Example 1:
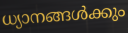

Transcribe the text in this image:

ധ്യാനങ്ങൾക്കും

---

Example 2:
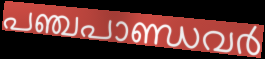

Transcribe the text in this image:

പഞ്ചപാണ്ഡവർ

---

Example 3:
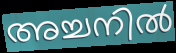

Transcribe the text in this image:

അച്ചനിൽ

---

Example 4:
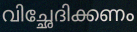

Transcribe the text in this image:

വിച്ഛേദിക്കണം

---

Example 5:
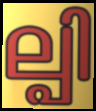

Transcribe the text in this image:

ല്പി